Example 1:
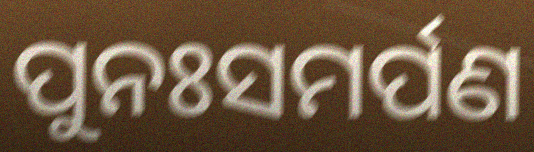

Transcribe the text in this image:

ପୁନଃସମର୍ପଣ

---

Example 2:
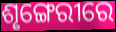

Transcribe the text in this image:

ଶୃଙ୍ଗେରୀରେ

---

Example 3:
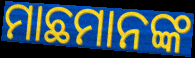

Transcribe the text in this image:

ମାଛମାନଙ୍କ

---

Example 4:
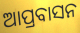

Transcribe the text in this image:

ଆପ୍ରବାସନ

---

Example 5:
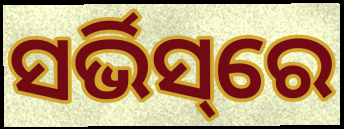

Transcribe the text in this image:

ସର୍ଭିସ୍‌ରେ